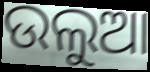
ଉଲୁଆ